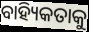
ବାହ୍ୟିକତାକୁ